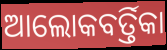
ଆଲୋକବର୍ତ୍ତିକା